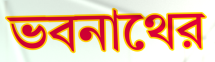
ভবনাথের